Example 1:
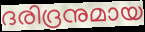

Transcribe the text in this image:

ദരിദ്രനുമായ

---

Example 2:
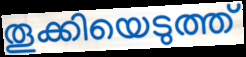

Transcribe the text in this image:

തൂക്കിയെടുത്ത്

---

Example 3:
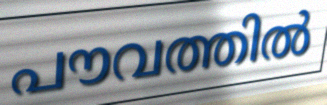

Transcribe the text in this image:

പൗവത്തിൽ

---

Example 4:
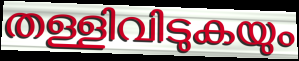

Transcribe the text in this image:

തള്ളിവിടുകയും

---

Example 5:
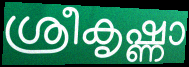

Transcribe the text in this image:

ശ്രീകൃഷ്ണാ